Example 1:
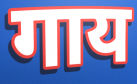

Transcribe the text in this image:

गाय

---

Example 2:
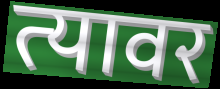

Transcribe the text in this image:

त्‍यावर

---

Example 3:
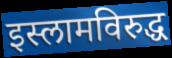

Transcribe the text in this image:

इस्लामविरुद्ध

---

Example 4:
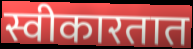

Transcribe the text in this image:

स्वीकारतात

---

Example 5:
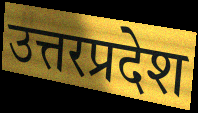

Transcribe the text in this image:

उत्तरप्रदेश